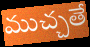
ముచ్చతే